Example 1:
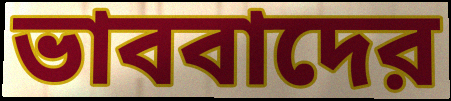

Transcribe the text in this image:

ভাববাদের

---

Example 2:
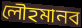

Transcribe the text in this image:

লৌহমানব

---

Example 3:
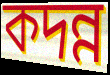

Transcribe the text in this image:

কদন্ন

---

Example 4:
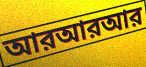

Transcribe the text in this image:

আরআরআর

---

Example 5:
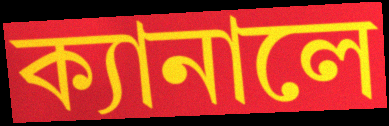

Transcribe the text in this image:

ক্যানালে